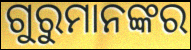
ଗୁରୁମାନଙ୍କର